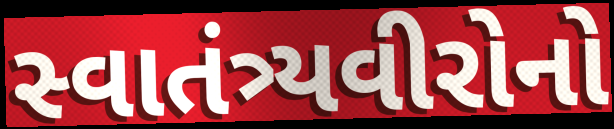
સ્વાતંત્ર્યવીરોનો